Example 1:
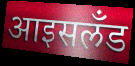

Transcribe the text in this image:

आइसलँड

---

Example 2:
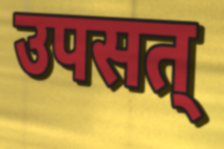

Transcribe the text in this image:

उपसत्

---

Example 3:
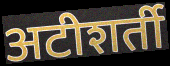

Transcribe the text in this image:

अटीशर्ती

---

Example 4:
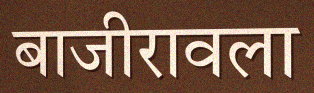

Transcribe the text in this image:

बाजीरावला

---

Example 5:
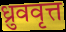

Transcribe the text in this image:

ध्रुववृत्त